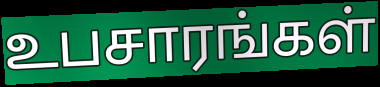
உபசாரங்கள்